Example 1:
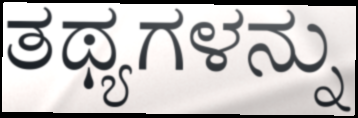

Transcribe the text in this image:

ತಥ್ಯಗಳನ್ನು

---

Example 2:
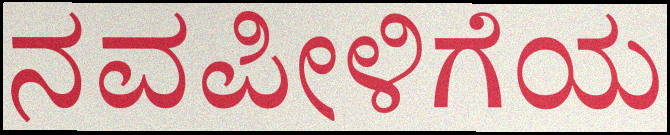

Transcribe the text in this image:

ನವಪೀಳಿಗೆಯ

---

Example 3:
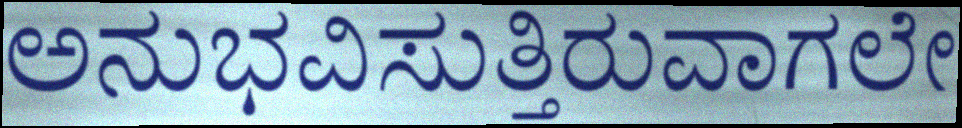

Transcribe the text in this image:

ಅನುಭವಿಸುತ್ತಿರುವಾಗಲೇ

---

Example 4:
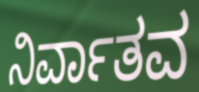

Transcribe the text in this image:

ನಿರ್ವಾತವ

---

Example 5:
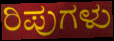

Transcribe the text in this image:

ರಿಪುಗಳು